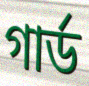
গার্ড